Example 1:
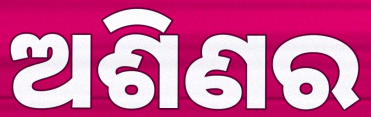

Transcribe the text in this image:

ଅଶିଣର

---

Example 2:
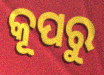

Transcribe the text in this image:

କୂପରୁ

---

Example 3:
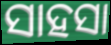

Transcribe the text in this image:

ସାହସା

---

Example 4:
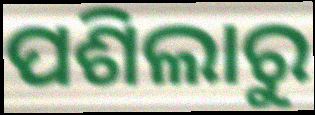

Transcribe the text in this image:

ପଶିଲାରୁ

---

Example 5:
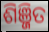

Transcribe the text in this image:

ଶିଞ୍ଜିତ